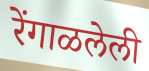
रेंगाळलेली